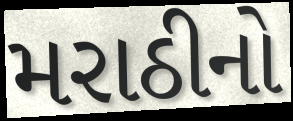
મરાઠીનો